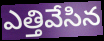
ఎత్తివేసిన